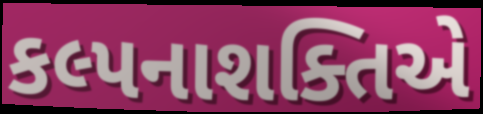
કલ્પનાશક્તિએ